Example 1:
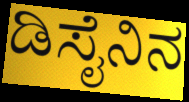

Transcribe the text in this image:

ಡಿಸೈನಿನ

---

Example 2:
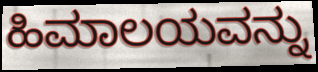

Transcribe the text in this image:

ಹಿಮಾಲಯವನ್ನು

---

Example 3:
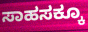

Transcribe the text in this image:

ಸಾಹಸಕ್ಕೂ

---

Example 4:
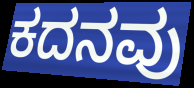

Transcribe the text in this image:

ಕದನವು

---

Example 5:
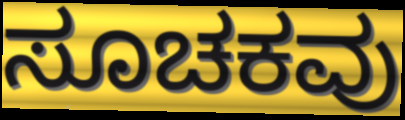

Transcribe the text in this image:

ಸೂಚಕವು